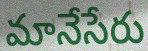
మానేసేరు